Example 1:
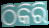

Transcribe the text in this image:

ଠିକିରି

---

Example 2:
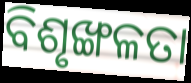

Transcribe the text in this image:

ବିଶୃଙ୍ଖଳତା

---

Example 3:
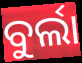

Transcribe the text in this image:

ବୁର୍ଲା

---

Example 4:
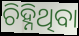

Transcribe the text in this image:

ଚିହ୍ନିଥିବା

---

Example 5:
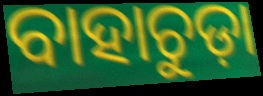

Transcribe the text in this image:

ବାହାଚୁଡ଼ା